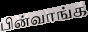
பின்வாங்க